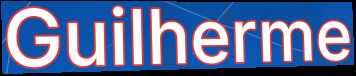
Guilherme